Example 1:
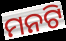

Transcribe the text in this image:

ମନଟି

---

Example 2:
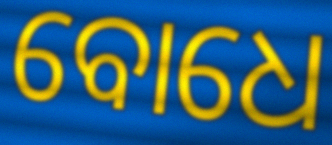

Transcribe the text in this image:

ବୋଧେ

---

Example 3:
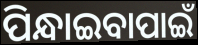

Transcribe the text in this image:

ପିନ୍ଧାଇବାପାଇଁ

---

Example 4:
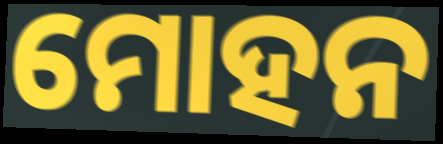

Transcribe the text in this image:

ମୋହନ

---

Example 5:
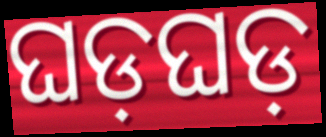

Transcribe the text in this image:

ଘଡ଼ଘଡ଼